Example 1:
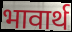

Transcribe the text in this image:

भावार्थ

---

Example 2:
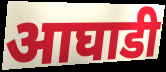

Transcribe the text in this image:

आघाडी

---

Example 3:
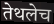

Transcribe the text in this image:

तेथलेच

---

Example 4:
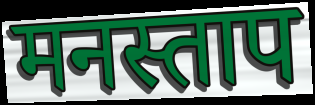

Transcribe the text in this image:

मनस्ताप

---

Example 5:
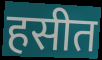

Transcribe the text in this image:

हसीत